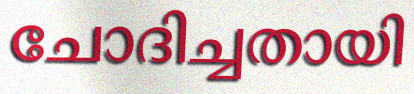
ചോദിച്ചതായി